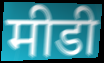
मीडी